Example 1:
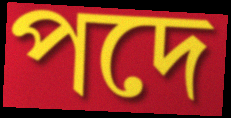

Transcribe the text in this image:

পদে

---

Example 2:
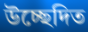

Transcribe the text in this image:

উচ্ছেদিত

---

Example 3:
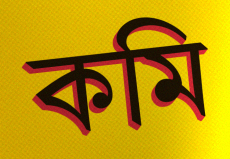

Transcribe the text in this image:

কমি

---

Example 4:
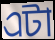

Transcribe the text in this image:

এটা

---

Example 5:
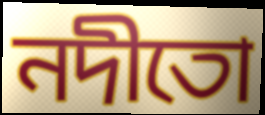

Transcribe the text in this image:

নদীতো